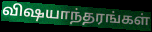
விஷயாந்தரங்கள்